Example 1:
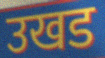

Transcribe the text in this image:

उखड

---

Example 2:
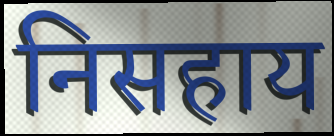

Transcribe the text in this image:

निसहाय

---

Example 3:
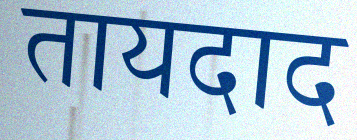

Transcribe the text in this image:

तायदाद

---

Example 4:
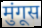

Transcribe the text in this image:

मुंगूस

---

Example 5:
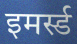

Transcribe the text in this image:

इमर्स्ड